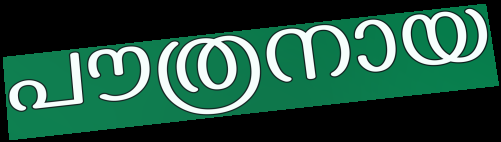
പൗത്രനായ